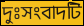
দুঃসংবাদটি